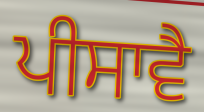
ਪੀਸਾਵੈ